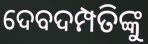
ଦେବଦମ୍ପତିଙ୍କୁ